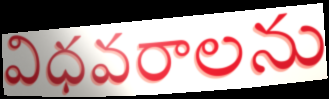
విధవరాలను